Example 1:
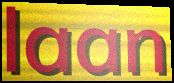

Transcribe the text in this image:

laan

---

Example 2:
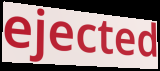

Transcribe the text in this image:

ejected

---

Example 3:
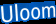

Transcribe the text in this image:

Uloom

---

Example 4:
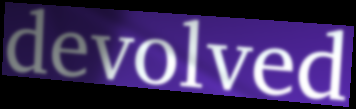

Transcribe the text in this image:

devolved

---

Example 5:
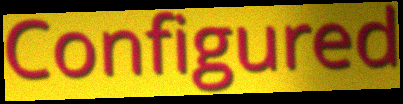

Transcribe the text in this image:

Configured